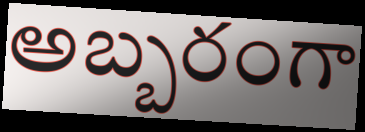
అబ్బరంగా